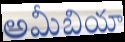
అమీబియా